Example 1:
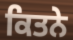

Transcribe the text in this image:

ਕਿਤਨੇ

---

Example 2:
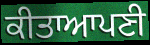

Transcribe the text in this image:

ਕੀਤਾਆਪਣੀ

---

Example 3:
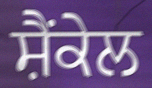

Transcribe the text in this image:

ਸ਼ੈਂਕੇਲ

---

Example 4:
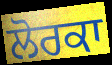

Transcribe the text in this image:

ਲੋਰਕਾ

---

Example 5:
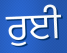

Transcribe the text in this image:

ਰੁਈ